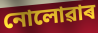
নোলোৱাৰ